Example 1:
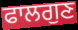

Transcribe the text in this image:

ਫਾਲਗੁਣ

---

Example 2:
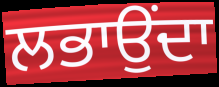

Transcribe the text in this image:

ਲਭਾਉਂਦਾ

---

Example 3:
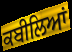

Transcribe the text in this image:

ਕਬੀਲਿਆਂ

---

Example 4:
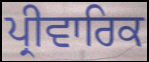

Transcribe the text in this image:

ਪ੍ਰੀਵਾਰਿਕ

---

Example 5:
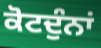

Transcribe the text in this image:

ਕੋਟਦੁੰਨਾਂ